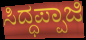
ಸಿದ್ಧಪ್ಪಾಜಿ